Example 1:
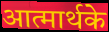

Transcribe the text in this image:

आत्मार्थके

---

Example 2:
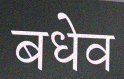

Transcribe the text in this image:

बधेव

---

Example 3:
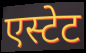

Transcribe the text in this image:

एस्टेट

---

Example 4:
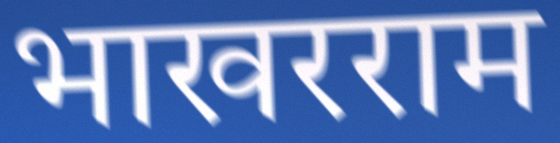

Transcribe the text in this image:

भाखरराम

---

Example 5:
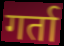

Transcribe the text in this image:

गर्ता